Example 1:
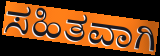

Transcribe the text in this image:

ಸಹಿತವಾಗಿ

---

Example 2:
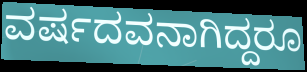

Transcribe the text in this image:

ವರ್ಷದವನಾಗಿದ್ದರೂ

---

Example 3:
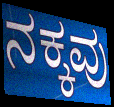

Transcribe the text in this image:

ನಕ್ಕವು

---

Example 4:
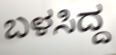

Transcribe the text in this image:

ಬಳಸಿದ್ದ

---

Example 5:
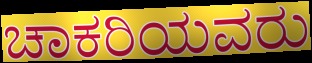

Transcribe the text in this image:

ಚಾಕರಿಯವರು